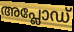
അപ്ലോഡ്